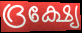
ദ്രക്ഷ്യേ